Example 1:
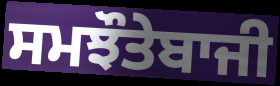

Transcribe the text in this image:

ਸਮਝੌਤੇਬਾਜੀ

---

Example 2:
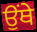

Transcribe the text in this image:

ਉੰਥੇ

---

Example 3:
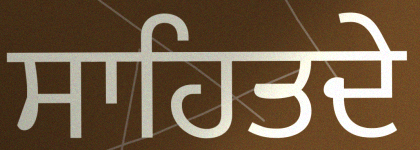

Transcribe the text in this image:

ਸਾਹਿਤਦੇ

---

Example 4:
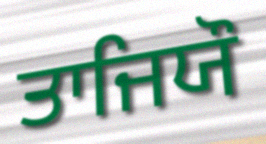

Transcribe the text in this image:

ਤਾਜਿਯੌ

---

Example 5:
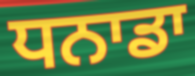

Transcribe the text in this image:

ਧਨਾਡਾ